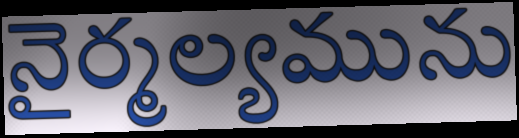
నైర్మల్యమును